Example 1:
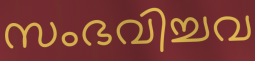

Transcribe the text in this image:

സംഭവിച്ചവ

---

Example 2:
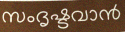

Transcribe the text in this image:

സംദൃഷ്ടവാൻ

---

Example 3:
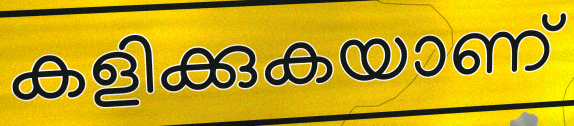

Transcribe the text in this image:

കളിക്കുകയാണ്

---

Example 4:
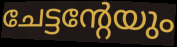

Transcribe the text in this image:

ചേട്ടന്റേയും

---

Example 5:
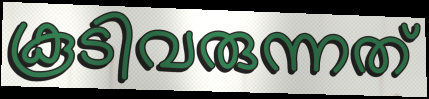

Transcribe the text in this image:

കൂടിവരുന്നത്